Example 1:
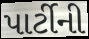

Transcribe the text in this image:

પાર્ટીની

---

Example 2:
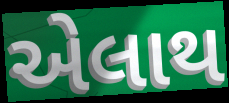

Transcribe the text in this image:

એલાથ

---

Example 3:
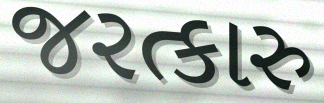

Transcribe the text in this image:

જરત્કારુ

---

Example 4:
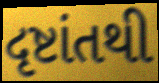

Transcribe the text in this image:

દૃષ્ટાંતથી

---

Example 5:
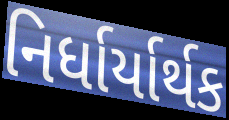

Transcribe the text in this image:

નિર્ધાર્યાર્થક